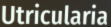
Utricularia